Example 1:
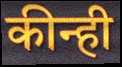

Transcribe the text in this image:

कीन्ही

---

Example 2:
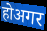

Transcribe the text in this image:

होअगर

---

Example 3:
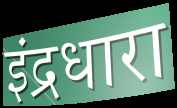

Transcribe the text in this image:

इंद्रधारा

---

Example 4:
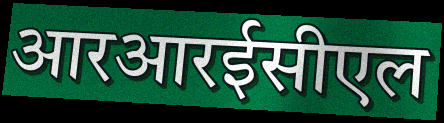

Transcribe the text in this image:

आरआरईसीएल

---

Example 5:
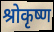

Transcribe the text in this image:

श्रोकृष्ण